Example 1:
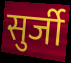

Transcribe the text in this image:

सुर्जी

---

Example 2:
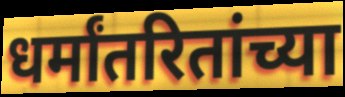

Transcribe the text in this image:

धर्मांतरितांच्या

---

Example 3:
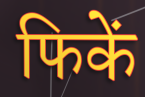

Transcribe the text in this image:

फिकें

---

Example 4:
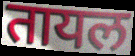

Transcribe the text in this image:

तायल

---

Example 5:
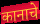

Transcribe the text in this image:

कानाचे